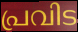
പ്രവിട